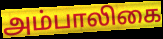
அம்பாலிகை